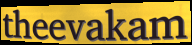
theevakam